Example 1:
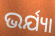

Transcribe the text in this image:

ଭର୍ଯ୍ୟା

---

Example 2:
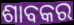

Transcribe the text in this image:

ଶାବକର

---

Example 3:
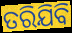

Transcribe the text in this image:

ତରିଯିବି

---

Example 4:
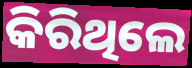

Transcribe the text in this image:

କିରିଥିଲେ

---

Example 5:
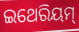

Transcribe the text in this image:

ଇଥେରିୟମ୍